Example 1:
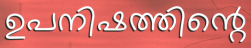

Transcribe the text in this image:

ഉപനിഷത്തിന്റെ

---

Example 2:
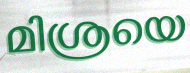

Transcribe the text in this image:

മിശ്രയെ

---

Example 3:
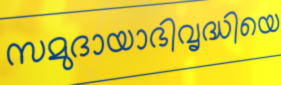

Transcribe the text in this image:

സമുദായാഭിവൃദ്ധിയെ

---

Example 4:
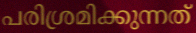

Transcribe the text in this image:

പരിശ്രമിക്കുന്നത്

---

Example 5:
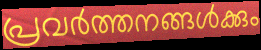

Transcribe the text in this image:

പ്രവർത്തനങ്ങൾക്കും